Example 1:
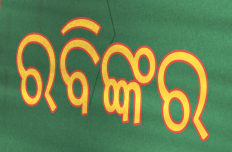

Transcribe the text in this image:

ରବିଙ୍କର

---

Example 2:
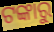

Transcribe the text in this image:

ଟଙ୍କାରୁ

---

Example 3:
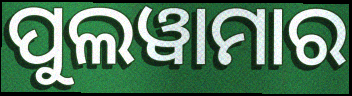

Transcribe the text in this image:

ପୁଲୱାମାର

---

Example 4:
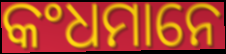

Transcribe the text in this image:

କଂଧମାନେ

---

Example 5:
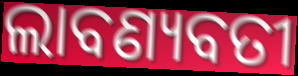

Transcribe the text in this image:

ଲାବଣ୍ୟବତୀ